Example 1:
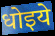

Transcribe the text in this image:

धोइये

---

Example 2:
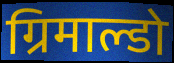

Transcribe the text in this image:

ग्रिमाल्डो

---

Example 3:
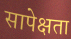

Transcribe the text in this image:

सापेक्षता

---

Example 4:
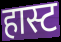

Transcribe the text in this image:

हास्ट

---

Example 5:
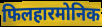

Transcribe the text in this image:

फिलहारमोनिक